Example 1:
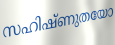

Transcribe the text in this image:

സഹിഷ്ണുതയോ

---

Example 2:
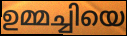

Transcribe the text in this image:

ഉമ്മച്ചിയെ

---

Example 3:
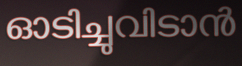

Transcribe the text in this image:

ഓടിച്ചുവിടാൻ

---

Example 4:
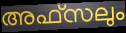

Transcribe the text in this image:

അഫ്സലും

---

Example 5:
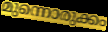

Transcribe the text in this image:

മുന്നൊരുക്കം